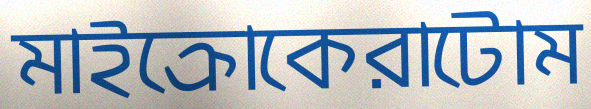
মাইক্রোকেরাটোম